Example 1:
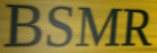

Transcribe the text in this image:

BSMR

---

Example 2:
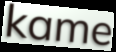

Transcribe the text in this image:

kame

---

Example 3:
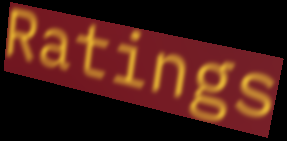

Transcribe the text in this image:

Ratings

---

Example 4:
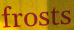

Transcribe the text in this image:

frosts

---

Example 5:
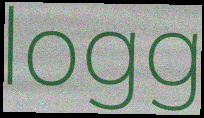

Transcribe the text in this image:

logg